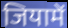
जियामें